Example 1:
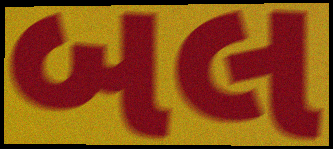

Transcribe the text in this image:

બલ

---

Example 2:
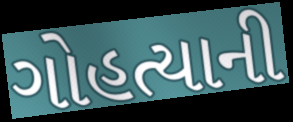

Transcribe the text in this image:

ગોહત્યાની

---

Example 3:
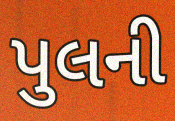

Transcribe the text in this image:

પુલની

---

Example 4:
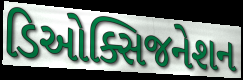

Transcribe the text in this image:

ડિઓક્સિજનેશન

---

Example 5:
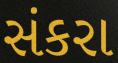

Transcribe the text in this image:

સંકરા